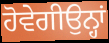
ਹੋਵੇਗੀਉਨ੍ਹਾਂ